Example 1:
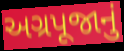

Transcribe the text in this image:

અગ્રપૂજાનું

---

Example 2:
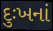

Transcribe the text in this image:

દુઃખનાં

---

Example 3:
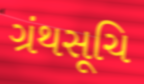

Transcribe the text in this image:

ગ્રંથસૂચિ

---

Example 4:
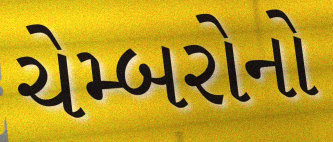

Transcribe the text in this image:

ચેમ્બરોનો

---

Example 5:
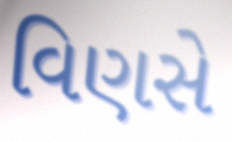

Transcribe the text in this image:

વિણસે